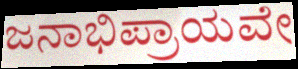
ಜನಾಭಿಪ್ರಾಯವೇ